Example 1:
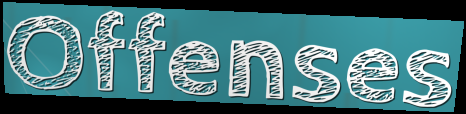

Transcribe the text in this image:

Offenses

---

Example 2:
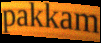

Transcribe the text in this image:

pakkam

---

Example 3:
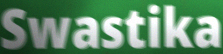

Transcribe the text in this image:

Swastika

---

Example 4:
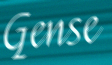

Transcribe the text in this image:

Gense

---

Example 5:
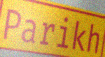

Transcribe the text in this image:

Parikh